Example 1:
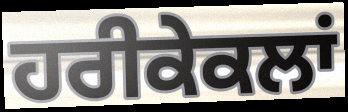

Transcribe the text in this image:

ਹਰੀਕੇਕਲਾਂ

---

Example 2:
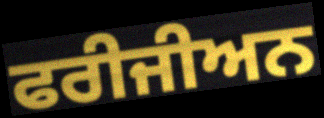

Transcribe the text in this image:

ਫਰੀਜੀਅਨ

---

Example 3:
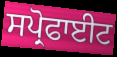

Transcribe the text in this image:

ਸਪ੍ਰੋਫਾਈਟ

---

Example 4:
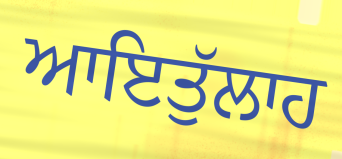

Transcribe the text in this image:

ਆਇਤੁੱਲਾਹ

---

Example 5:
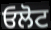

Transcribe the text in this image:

ਓਲੋਟ